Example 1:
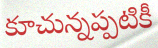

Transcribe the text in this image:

కూచున్నప్పటికీ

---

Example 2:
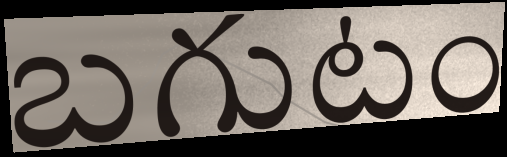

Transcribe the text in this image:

బగుటం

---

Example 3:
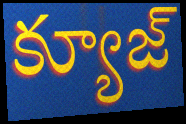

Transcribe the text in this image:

క్యూజ్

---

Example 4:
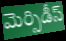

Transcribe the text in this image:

మెర్సిడీస్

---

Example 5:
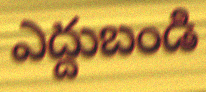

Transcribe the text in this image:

ఎద్దుబండి